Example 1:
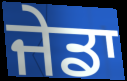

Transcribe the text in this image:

ਜੇਡਾ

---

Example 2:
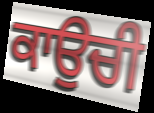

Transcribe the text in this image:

ਕਾਉਚੀ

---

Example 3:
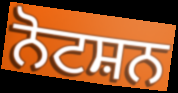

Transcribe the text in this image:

ਨੋਟਸ਼ਨ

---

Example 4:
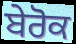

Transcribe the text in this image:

ਬੇਰੋਕ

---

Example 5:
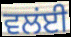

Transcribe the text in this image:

ਵਲਂਈ